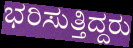
ಭರಿಸುತ್ತಿದ್ದರು